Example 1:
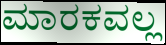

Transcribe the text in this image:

ಮಾರಕವಲ್ಲ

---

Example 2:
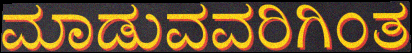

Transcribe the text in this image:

ಮಾಡುವವರಿಗಿಂತ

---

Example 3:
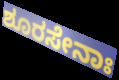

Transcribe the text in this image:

ಶೂರಸೇನಾಃ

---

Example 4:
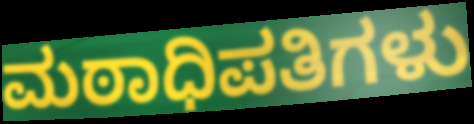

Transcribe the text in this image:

ಮಠಾಧಿಪತಿಗಳು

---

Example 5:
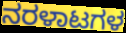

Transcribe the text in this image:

ನರಳಾಟಗಳ